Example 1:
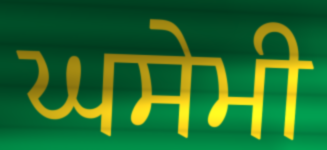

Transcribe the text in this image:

ਘਸੇਮੀ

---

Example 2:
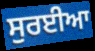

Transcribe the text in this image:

ਸੁਰਈਆ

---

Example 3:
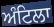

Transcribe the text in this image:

ਅੰਟਿਲਾ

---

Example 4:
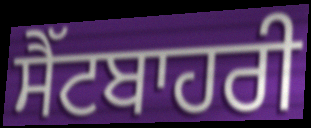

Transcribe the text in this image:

ਸੈੱਟਬਾਹਰੀ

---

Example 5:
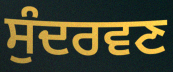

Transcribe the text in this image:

ਸੁੰਦਰਵਣ